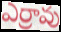
ఎర్రావు